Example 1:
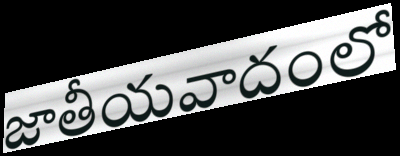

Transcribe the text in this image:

జాతీయవాదంలో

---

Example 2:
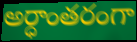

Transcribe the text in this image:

అర్ధాంతరంగా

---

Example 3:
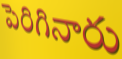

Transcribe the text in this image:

పెరిగినారు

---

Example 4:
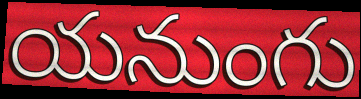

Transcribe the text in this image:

యనుంగు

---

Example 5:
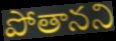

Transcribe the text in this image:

పోతానని